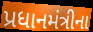
પ્રધાનમંત્રીના